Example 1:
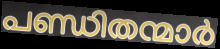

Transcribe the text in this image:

പണ്ഡിതന്മാർ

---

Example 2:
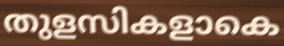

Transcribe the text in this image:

തുളസികളാകെ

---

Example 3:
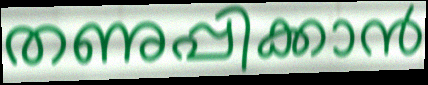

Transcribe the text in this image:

തണുപ്പിക്കാൻ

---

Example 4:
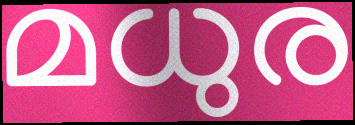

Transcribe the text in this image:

മധുര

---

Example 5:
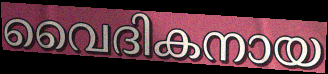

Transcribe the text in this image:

വൈദികനായ